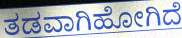
ತಡವಾಗಿಹೋಗಿದೆ